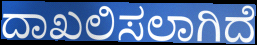
ದಾಖಲಿಸಲಾಗಿದೆ